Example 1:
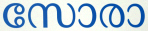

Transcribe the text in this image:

സോരാ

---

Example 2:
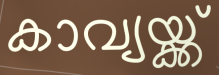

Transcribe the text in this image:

കാവ്യയ്ക്ക്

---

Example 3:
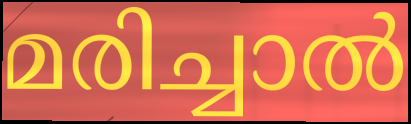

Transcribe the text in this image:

മരിച്ചാൽ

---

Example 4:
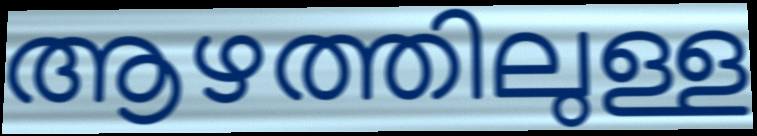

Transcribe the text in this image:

ആഴത്തിലുള്ള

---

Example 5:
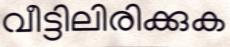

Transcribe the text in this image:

വീട്ടിലിരിക്കുക